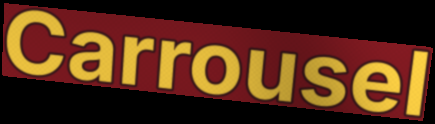
Carrousel